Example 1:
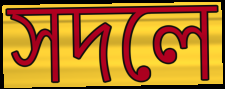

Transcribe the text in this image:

সদলে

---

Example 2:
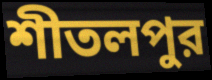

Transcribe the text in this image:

শীতলপুর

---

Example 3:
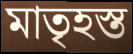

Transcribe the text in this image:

মাতৃহস্ত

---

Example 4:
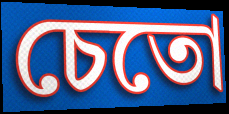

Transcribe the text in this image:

চেতো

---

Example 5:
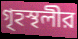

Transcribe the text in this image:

গৃহস্থলীর